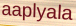
aaplyala